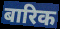
बारिक